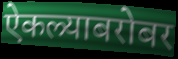
ऐकल्याबरोबर